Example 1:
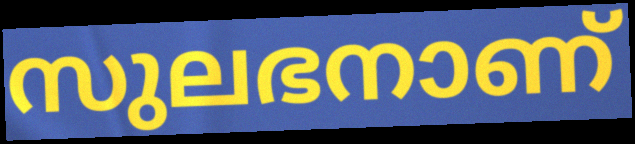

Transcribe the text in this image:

സുലഭനാണ്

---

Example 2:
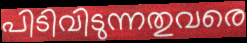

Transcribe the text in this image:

പിടിവിടുന്നതുവരെ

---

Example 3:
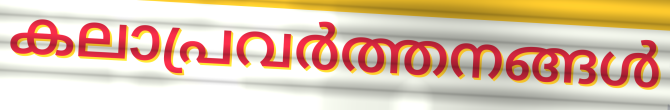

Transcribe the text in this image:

കലാപ്രവർത്തനങ്ങൾ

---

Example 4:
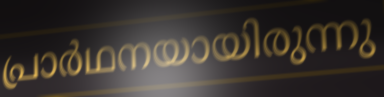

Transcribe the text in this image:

പ്രാർഥനയായിരുന്നു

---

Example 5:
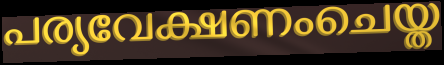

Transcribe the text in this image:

പര്യവേക്ഷണംചെയ്ത